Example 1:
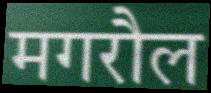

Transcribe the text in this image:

मगरौल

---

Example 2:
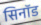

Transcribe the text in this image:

सिनॉड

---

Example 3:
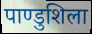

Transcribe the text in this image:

पाण्डुशिला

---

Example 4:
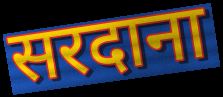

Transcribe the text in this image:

सरदाना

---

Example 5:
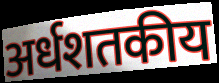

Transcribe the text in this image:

अर्धशतकीय